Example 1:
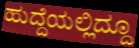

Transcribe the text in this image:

ಹುದ್ದೆಯಲ್ಲಿದ್ದೂ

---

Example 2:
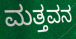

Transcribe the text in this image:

ಮತ್ತವನ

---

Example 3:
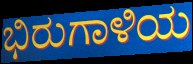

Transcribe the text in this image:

ಭಿರುಗಾಳಿಯ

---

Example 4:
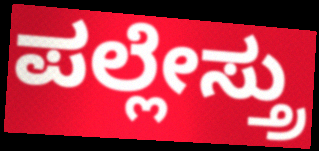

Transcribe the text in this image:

ಪಲ್ಲೇಸ್ತ್ರು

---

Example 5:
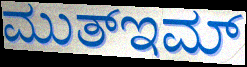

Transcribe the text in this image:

ಮುತ್ಇಮ್